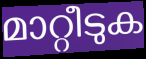
മാറ്റീടുക